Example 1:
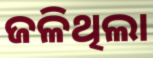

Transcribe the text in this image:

ଜଳିଥିଲା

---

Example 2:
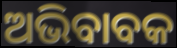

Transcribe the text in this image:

ଅଭିବାବକ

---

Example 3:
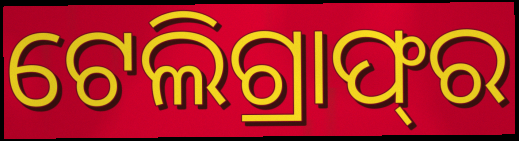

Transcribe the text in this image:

ଟେଲିଗ୍ରାଫ୍‌ର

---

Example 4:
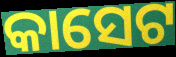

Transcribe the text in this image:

କାସେଟ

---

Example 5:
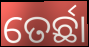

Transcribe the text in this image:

ତେର୍ଛା